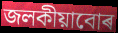
জলকীয়াবোৰ